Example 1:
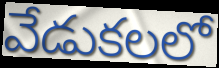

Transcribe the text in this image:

వేడుకలలో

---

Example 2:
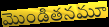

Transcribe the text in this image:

మొండితనమూ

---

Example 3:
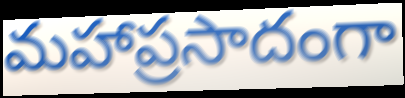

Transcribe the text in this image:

మహాప్రసాదంగా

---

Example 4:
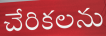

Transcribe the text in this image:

చేరికలను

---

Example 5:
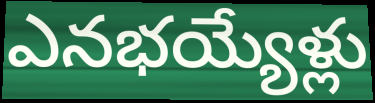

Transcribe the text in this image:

ఎనభయ్యేళ్లు